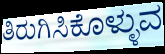
ತಿರುಗಿಸಿಕೊಳ್ಳುವ